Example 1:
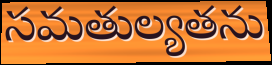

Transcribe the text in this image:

సమతుల్యతను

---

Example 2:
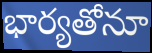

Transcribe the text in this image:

భార్యతోనూ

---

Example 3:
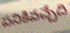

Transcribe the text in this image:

పనికివచ్చేది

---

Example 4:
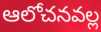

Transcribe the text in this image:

ఆలోచనవల్ల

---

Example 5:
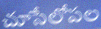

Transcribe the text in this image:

చూసేలోపల